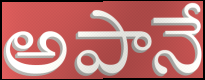
అపానే